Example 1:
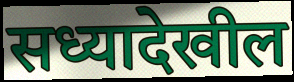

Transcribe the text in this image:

सध्यादेखील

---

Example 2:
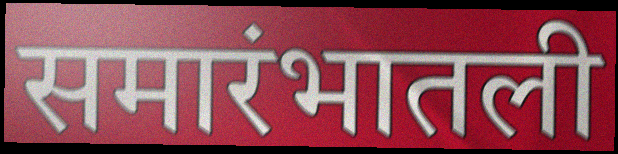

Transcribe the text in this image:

समारंभातली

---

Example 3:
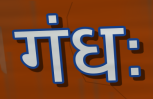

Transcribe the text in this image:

गंधः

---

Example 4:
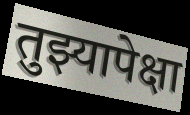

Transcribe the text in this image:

तुझ्यापेक्षा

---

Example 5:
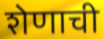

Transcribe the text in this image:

शेणाची